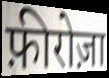
फ़ीरोज़ा